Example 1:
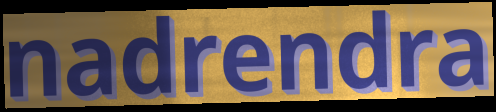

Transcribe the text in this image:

nadrendra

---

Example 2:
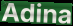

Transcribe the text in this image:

Adina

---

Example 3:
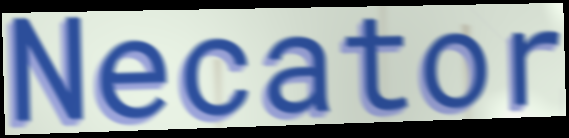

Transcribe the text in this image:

Necator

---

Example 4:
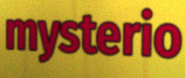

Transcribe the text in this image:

mysterio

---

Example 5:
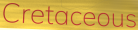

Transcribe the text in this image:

Cretaceous